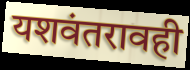
यशवंतरावही